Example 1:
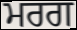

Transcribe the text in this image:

ਮਰਗ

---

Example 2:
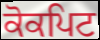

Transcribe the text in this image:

ਕੋਕਪਿਟ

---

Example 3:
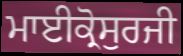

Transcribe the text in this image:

ਮਾਈਕ੍ਰੋਸੁਰਜੀ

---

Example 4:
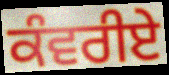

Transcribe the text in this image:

ਕੰਵਰੀਏ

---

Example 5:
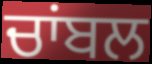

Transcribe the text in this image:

ਚਾਂਬਲ